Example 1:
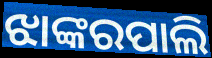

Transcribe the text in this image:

ଝାଙ୍କରପାଲି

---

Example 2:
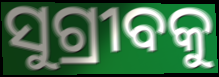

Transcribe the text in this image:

ସୁଗ୍ରୀବକୁ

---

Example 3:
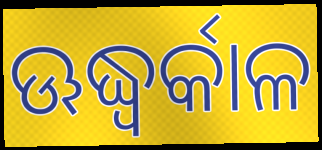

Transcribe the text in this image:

ଊଦ୍ଧ୍ୱର୍କାଳ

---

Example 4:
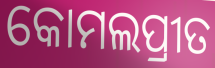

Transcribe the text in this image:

କୋମଲପ୍ରୀତ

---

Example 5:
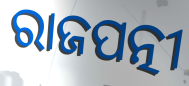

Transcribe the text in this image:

ରାଜପତ୍ନୀ